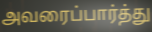
அவரைப்பார்த்து